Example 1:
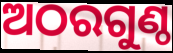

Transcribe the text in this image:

ଅଠରଗୁଣ୍ଠ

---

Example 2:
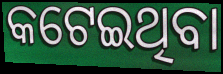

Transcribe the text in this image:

କଟେଇଥିବା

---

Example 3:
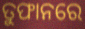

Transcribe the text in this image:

ତୁଫାନରେ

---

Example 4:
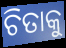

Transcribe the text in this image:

ଚିତାକୁ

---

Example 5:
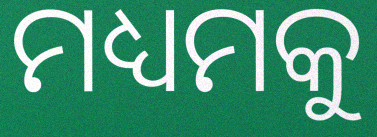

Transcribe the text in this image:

ମଧ୍ୟମକୁ